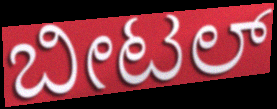
ಬೀಟಲ್